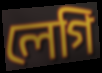
লেগি